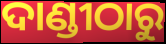
ଦାଣ୍ଡୀଠାରୁ